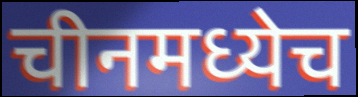
चीनमध्येच